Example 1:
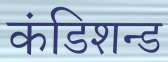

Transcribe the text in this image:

कंडिशन्ड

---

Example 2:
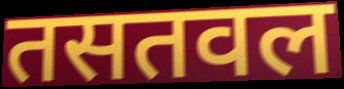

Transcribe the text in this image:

तसतवल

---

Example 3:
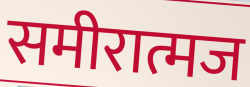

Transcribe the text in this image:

समीरात्मज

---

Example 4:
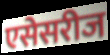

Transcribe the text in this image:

एसेसरीज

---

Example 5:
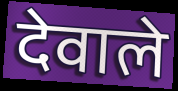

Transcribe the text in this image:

देवाले